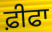
ਫ਼ੀਫਾ